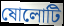
ষোলোটি